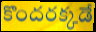
కొందరక్కడే